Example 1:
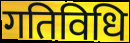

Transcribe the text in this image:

गतिविधि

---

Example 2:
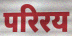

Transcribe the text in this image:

परिरय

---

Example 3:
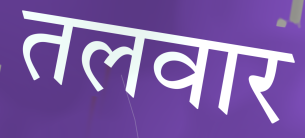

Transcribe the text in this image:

तलवार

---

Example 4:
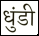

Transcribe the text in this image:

धुंडी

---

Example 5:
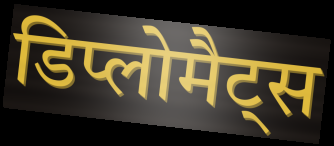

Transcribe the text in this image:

डिप्लोमैट्स